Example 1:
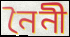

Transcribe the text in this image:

নৈনী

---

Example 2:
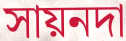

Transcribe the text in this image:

সায়নদা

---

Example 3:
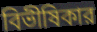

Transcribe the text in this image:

বিভীষিকার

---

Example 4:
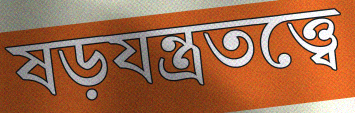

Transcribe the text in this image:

ষড়যন্ত্রতত্ত্বে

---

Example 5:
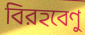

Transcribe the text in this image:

বিরহবেণু